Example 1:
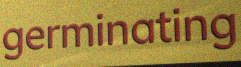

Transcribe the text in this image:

germinating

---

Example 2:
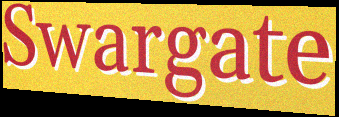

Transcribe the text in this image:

Swargate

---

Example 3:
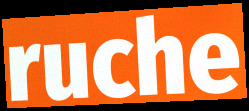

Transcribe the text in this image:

ruche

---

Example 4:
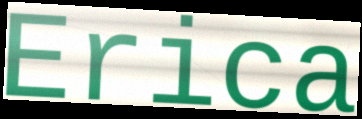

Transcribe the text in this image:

Erica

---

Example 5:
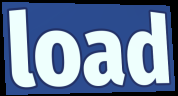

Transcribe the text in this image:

load